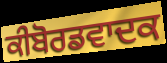
ਕੀਬੋਰਡਵਾਦਕ